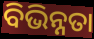
ବିଭିନ୍ନତା